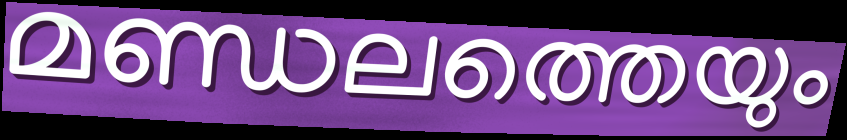
മണ്ഡലത്തെയും